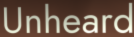
Unheard